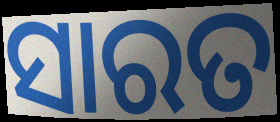
ସାରତ